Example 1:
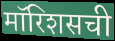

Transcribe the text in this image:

मॉरिशसची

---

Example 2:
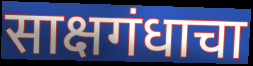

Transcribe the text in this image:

साक्षगंधाचा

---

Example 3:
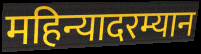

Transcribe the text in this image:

महिन्यादरम्यान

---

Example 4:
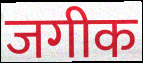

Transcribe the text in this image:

जगीक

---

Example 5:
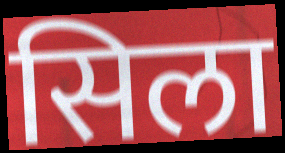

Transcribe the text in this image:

सिला